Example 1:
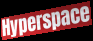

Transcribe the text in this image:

Hyperspace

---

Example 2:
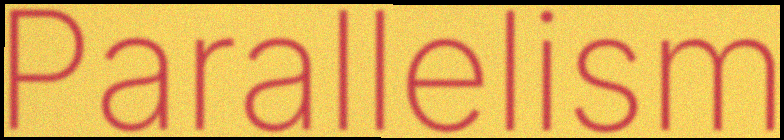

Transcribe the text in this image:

Parallelism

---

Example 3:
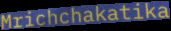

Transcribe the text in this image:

Mrichchakatika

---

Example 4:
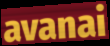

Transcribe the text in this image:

avanai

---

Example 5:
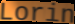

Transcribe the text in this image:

Lorin